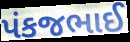
પંકજભાઈ